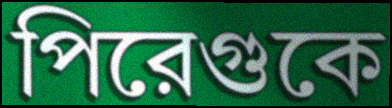
পিরেগুকে